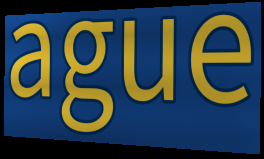
ague